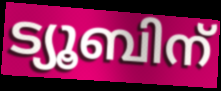
ട്യൂബിന്